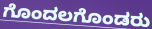
ಗೊಂದಲಗೊಂಡರು